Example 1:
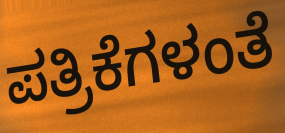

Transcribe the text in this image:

ಪತ್ರಿಕೆಗಳಂತೆ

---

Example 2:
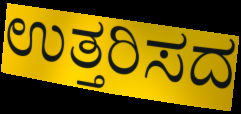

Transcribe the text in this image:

ಉತ್ತರಿಸದ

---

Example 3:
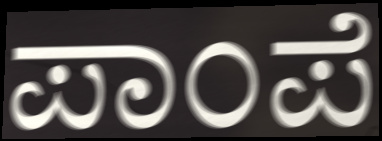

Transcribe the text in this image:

ಪಾಂಪೆ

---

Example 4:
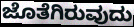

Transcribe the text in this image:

ಜೊತೆಗಿರುವುದು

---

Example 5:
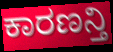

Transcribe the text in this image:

ಕಾರಣನ್ತಿ